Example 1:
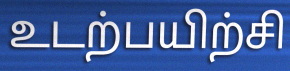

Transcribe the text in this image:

உடற்பயிற்சி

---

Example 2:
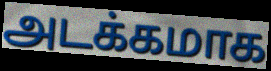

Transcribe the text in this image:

அடக்கமாக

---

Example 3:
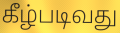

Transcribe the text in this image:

கீழ்படிவது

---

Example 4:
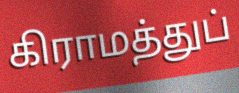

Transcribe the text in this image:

கிராமத்துப்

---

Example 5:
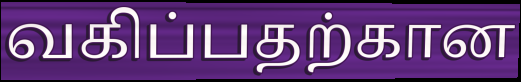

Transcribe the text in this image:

வகிப்பதற்கான